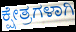
ಕ್ಷೇತ್ರಗಳಾಗಿ